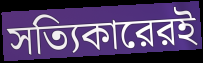
সত্যিকারেরই